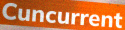
Cuncurrent